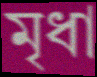
মৃধা